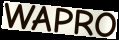
WAPRO